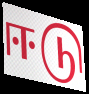
ஈடு